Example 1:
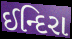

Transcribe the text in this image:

ઈન્દિરા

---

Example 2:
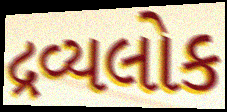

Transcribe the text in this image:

દ્રવ્યલોક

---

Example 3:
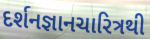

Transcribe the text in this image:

દર્શનજ્ઞાનચારિત્રથી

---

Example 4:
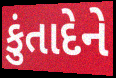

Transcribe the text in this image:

કુંતાદેને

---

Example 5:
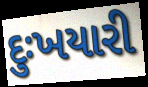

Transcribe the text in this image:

દુઃખયારી